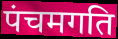
पंचमगति